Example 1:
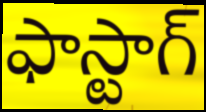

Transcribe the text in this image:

ఫాస్టాగ్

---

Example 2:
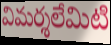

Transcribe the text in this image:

విమర్శలేమిటి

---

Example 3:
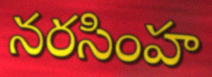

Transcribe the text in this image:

నరసింహ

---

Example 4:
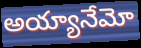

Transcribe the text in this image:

అయ్యానేమో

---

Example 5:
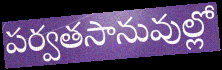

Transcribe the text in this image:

పర్వతసానువుల్లో